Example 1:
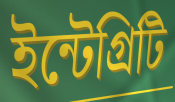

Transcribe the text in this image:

ইন্টেগ্রিটি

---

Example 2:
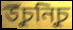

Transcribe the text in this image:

উঁচুনিচু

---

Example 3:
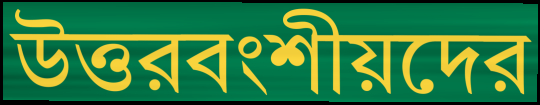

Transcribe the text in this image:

উত্তরবংশীয়দের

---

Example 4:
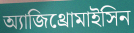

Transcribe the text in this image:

অ্যাজিথ্রোমাইসিন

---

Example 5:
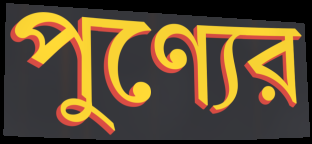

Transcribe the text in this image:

পুণ্যের